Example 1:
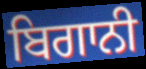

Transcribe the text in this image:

ਬਿਗਾਨੀ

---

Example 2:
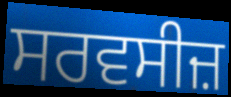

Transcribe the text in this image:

ਸਰਵਸੀਜ਼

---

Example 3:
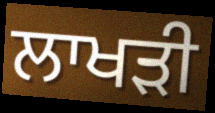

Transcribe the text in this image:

ਲਾਖੜੀ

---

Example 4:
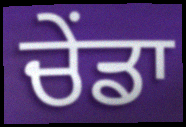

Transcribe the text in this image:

ਚੇਂਡਾ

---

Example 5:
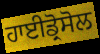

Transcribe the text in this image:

ਹਾਈਡ੍ਰੋਸੋਲ